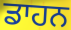
ਡਾਹਨ